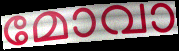
മോവാ